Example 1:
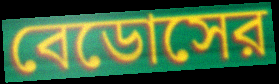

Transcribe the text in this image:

বেডোসের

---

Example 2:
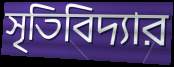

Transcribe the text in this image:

সৃতিবিদ্যার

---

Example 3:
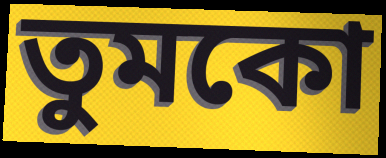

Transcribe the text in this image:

তুমকো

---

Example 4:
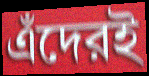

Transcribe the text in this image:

এঁদেরই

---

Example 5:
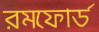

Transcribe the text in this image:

রমফোর্ড